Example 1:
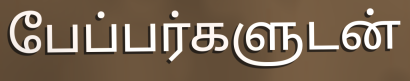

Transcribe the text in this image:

பேப்பர்களுடன்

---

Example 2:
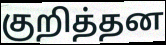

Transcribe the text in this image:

குறித்தன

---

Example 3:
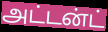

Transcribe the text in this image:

அட்டன்ட்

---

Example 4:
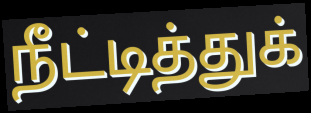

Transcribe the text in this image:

நீட்டித்துக்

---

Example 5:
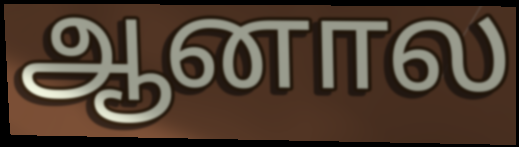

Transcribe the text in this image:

ஆனால